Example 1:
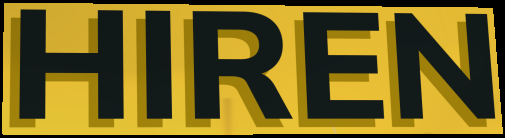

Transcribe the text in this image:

HIREN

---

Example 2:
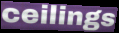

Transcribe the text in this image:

ceilings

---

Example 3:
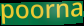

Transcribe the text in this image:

poorna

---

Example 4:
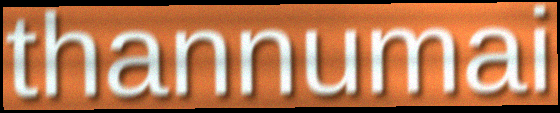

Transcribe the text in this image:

thannumai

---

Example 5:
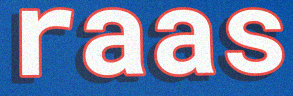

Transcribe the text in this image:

raas